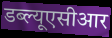
डब्ल्यूएसीआर